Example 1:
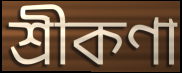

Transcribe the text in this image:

শ্রীকণা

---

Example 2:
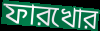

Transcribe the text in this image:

ফারখোর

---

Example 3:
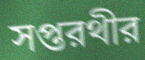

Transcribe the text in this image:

সপ্তরথীর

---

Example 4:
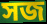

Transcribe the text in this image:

সজ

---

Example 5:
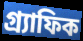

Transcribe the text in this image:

গ্র্যাফিক